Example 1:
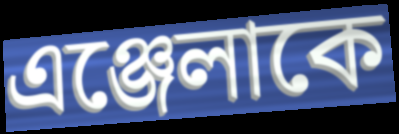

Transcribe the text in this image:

এঞ্জেলাকে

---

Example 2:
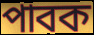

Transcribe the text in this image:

পাবক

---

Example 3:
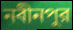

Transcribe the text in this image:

নবীনপুর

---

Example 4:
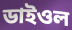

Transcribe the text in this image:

ডাইওল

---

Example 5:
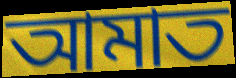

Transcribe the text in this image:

আমাত